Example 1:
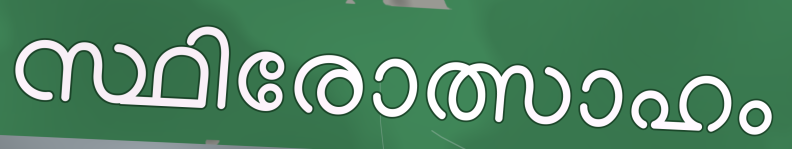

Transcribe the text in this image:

സ്ഥിരോത്സാഹം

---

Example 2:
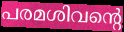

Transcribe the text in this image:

പരമശിവന്റെ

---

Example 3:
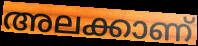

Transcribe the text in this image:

അലക്കാണ്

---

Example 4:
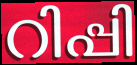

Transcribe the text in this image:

റിപ്പി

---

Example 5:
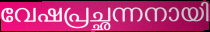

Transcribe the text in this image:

വേഷപ്രച്ഛന്നനായി